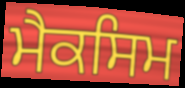
ਮੈਕਸਿਮ